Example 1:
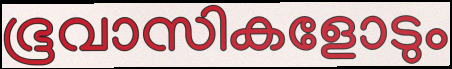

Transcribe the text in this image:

ഭൂവാസികളോടും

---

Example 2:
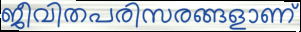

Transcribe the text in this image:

ജീവിതപരിസരങ്ങളാണ്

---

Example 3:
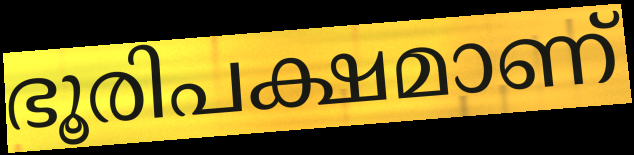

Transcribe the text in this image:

ഭൂരിപക്ഷമാണ്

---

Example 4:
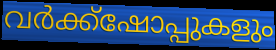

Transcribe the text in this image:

വർക്ക്ഷോപ്പുകളും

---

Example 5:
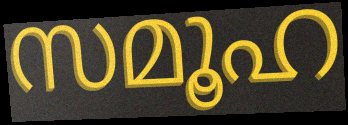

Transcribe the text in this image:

സമൂഹ